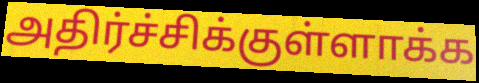
அதிர்ச்சிக்குள்ளாக்க